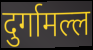
दुर्गामल्ल